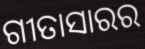
ଗୀତାସାରର